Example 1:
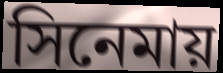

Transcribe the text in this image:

সিনেমায়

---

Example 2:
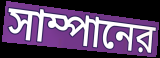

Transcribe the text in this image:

সাম্পানের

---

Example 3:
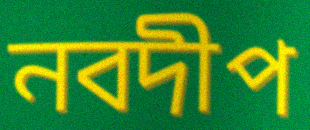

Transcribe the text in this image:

নবদীপ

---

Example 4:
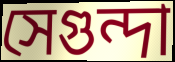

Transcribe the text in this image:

সেগুন্দা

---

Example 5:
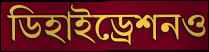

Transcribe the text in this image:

ডিহাইড্রেশনও